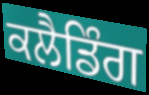
ਕਲੈਡਿੰਗ